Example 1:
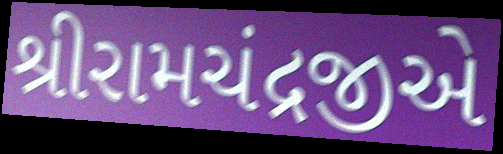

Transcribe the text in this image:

શ્રીરામચંદ્રજીએ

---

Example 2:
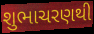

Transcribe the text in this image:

શુભાચરણથી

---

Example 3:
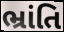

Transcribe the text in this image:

ભ્રાંતિ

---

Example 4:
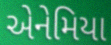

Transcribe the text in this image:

એનેમિયા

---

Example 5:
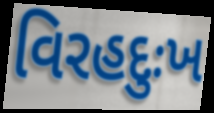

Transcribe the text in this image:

વિરહદુઃખ